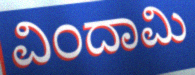
ವಿಂದಾಮಿ